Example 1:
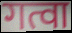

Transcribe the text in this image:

गत्वा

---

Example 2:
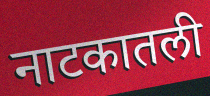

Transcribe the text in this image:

नाटकातली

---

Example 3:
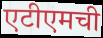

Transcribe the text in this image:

एटीएमची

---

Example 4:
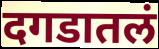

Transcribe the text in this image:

दगडातलं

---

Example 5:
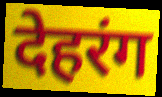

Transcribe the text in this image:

देहरंग